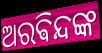
ଅରଵିନ୍ଦଙ୍କ